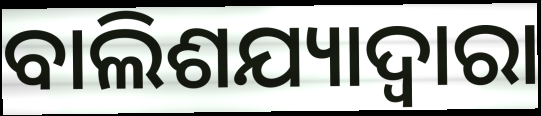
ବାଲିଶଯ୍ୟାଦ୍ଵାରା